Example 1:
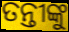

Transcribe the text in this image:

ତନ୍ତୀଙ୍କୁ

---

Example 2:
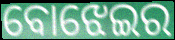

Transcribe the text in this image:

ବୋଝେଇର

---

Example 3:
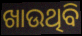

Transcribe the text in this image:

ଖାଉଥିବି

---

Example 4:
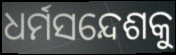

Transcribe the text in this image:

ଧର୍ମସନ୍ଦେଶକୁ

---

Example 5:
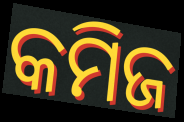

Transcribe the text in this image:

କମିଜ